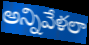
అన్నివేళలా